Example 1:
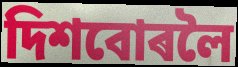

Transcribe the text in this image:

দিশবোৰলৈ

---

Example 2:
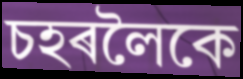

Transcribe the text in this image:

চহৰলৈকে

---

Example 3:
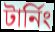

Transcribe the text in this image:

টাৰ্নিং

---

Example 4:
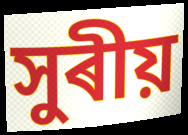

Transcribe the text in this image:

সুৰীয়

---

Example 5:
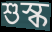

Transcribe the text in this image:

শুস্ক